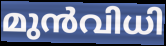
മുൻവിധി